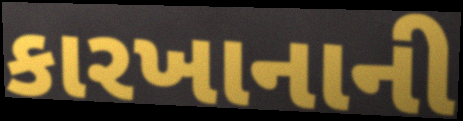
કારખાનાની